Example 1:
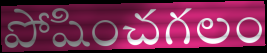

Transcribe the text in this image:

పోషించగలం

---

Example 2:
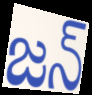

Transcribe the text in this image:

జన్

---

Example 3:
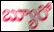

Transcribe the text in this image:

బ్యూరో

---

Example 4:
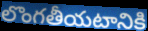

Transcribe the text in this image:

లొంగతీయటానికి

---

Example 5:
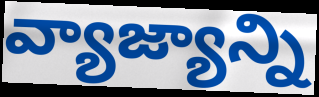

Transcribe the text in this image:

వ్యాజ్యాన్ని